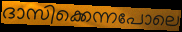
ദാസിക്കെന്നപോലെ